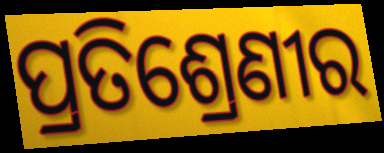
ପ୍ରତିଶ୍ରେଣୀର